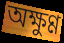
অক্ষুণ্ণ